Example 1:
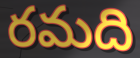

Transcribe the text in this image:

రమది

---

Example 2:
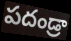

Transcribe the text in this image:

పదండ్రా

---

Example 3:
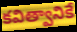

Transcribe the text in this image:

కవిత్వానికే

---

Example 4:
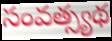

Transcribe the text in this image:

సంవత్స్యథ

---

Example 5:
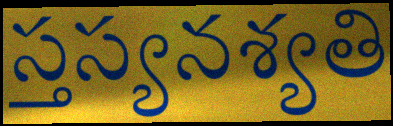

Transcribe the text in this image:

స్తస్యనశ్యతి